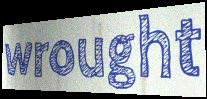
wrought